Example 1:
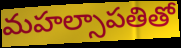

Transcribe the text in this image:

మహల్సాపతితో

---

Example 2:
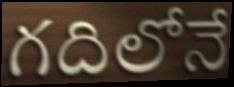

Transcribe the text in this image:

గదిలోనే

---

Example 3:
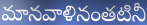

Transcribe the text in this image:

మానవాళినంతటినీ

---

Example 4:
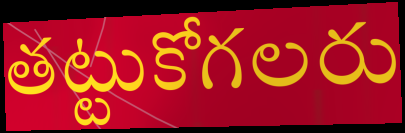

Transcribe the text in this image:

తట్టుకోగలరు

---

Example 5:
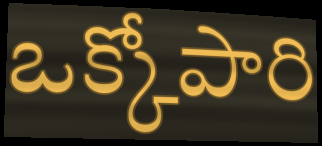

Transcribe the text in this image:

ఒక్కోపారి